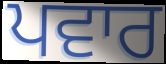
ਪਵਾਰ